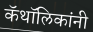
कॅथॉलिकांनी